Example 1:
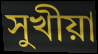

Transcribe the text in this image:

সুখীয়া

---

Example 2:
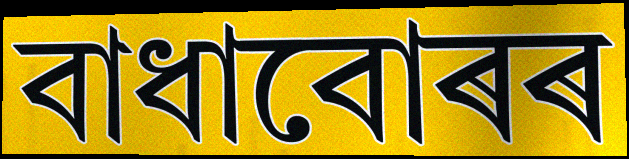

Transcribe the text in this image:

বাধাবোৰৰ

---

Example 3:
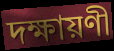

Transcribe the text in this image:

দক্ষায়ণী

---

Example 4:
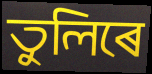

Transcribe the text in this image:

তুলিৰে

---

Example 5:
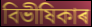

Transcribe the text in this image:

বিভীষিকাৰ